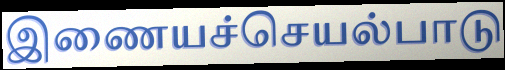
இணையச்செயல்பாடு